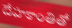
దేహకాంతితో